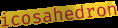
icosahedron